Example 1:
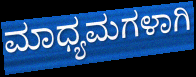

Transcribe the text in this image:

ಮಾಧ್ಯಮಗಳಾಗಿ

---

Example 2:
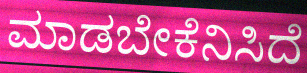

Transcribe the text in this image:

ಮಾಡಬೇಕೆನಿಸಿದೆ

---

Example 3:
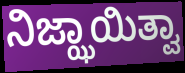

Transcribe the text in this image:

ನಿಜ್ಝಾಯಿತ್ವಾ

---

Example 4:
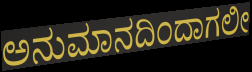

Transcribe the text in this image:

ಅನುಮಾನದಿಂದಾಗಲೀ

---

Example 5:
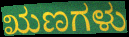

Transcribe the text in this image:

ಋಣಗಳು